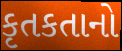
કૃતકતાનો